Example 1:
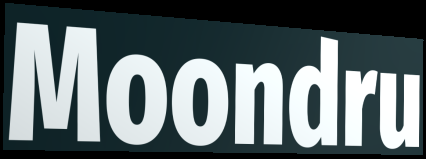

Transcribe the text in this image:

Moondru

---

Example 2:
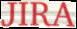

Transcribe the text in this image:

JIRA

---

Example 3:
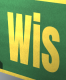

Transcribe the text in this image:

Wis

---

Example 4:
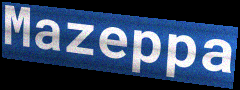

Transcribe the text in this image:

Mazeppa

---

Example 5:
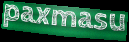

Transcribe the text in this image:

paxmasu